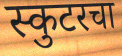
स्कुटरचा